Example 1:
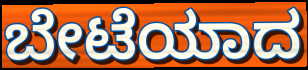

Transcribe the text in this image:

ಬೇಟೆಯಾದ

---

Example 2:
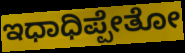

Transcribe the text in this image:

ಇಧಾಧಿಪ್ಪೇತೋ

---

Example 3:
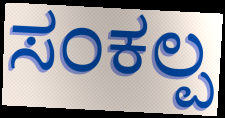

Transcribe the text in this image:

ಸಂಕಲ್ಪ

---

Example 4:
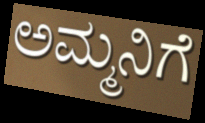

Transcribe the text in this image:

ಅಮ್ಮನಿಗೆ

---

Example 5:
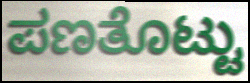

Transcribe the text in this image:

ಪಣತೊಟ್ಟು